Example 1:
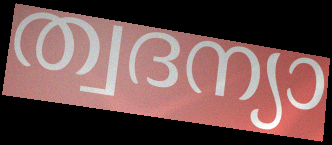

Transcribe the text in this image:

ത്വദന്യാ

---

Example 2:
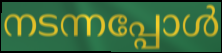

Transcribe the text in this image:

നടന്നപ്പോൾ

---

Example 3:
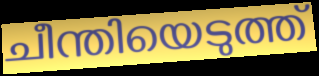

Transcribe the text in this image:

ചീന്തിയെടുത്ത്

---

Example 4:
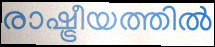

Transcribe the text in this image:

രാഷ്ട്രീയത്തിൽ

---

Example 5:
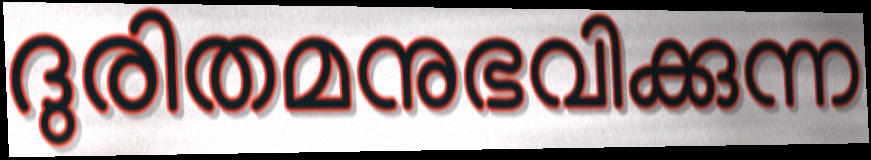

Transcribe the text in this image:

ദുരിതമനുഭവിക്കുന്ന